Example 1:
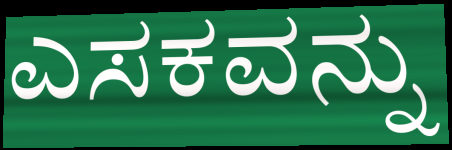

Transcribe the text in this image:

ಎಸಕವನ್ನು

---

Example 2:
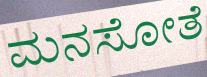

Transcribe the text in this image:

ಮನಸೋತೆ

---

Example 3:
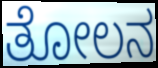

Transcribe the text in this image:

ತೋಲನ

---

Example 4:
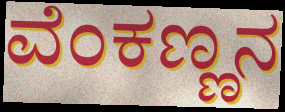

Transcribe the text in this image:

ವೆಂಕಣ್ಣನ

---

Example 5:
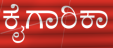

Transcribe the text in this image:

ಕೈಗಾರಿಕಾ